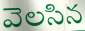
వెలసిన